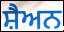
ਸ਼ੈਅਨ